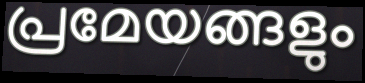
പ്രമേയങ്ങളും